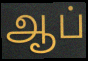
ஆப்